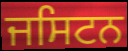
ਜਸਿਟਨ